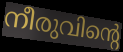
നീരുവിന്റെ